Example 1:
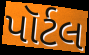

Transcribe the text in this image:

પૉર્ટલ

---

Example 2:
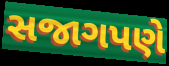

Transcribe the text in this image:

સજાગપણે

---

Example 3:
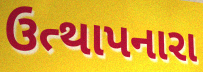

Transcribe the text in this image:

ઉત્થાપનારા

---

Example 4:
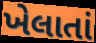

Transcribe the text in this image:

ખેલાતાં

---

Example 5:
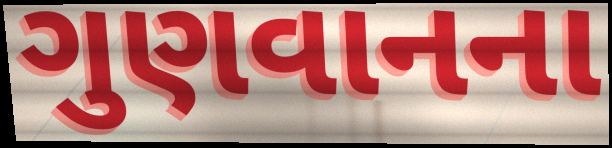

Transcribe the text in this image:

ગુણવાનના